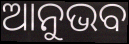
ଆନୁଭବ